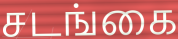
சடங்கை